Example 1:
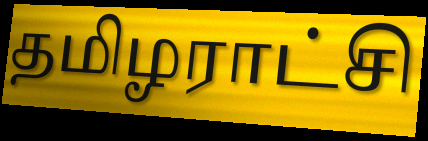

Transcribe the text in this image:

தமிழராட்சி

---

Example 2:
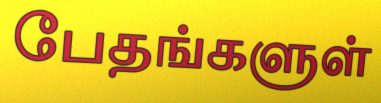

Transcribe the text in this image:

பேதங்களுள்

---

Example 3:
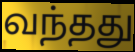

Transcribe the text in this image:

வந்தது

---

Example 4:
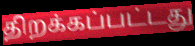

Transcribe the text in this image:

திறக்கப்பட்டது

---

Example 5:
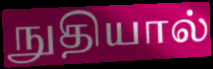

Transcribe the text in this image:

நுதியால்